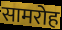
सामरोह